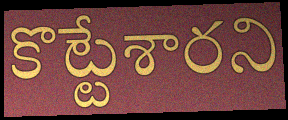
కొట్టేశారని